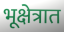
भूक्षेत्रात